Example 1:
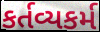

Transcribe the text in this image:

કર્તવ્યકર્મ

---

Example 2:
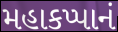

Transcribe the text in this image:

મહાકપ્પાનં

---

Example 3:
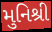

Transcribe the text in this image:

મુનિશ્રી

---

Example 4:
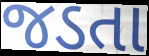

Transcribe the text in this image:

જડતા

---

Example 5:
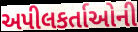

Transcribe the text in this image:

અપીલકર્તાઓની